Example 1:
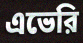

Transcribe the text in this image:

এভেরি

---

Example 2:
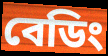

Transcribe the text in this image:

বেডিং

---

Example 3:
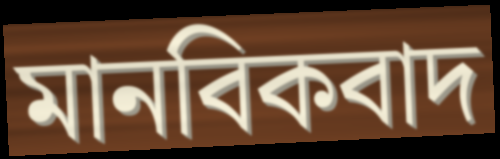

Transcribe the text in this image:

মানবিকবাদ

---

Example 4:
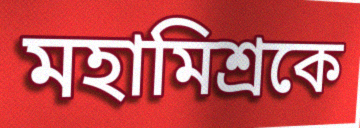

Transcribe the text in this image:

মহামিশ্রকে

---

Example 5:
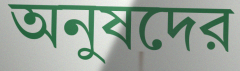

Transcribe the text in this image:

অনুষদের